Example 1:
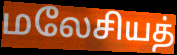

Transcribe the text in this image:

மலேசியத்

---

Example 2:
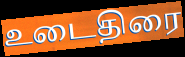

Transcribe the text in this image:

உடைதிரை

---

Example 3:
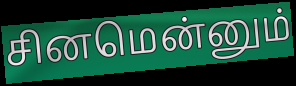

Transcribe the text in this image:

சினமென்னும்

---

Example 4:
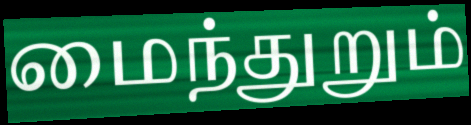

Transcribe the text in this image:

மைந்துறும்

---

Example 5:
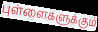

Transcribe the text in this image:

புள்ளைகளுக்கும்